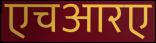
एचआरए